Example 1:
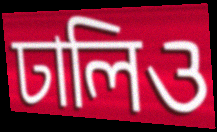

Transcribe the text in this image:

ঢালিও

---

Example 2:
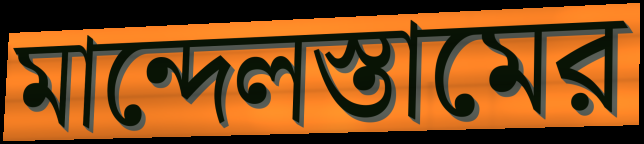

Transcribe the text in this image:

মান্দেলস্তামের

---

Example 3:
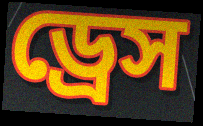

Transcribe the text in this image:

ড্রেস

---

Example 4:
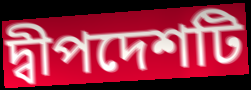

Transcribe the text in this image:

দ্বীপদেশটি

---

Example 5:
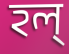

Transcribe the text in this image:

হল্